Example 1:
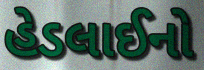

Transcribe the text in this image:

હેડલાઈનો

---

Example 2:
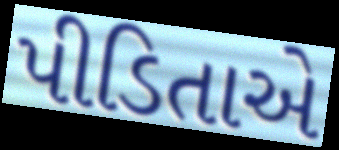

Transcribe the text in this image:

પીડિતાએ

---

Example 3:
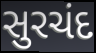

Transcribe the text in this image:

સુરચંદ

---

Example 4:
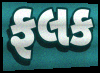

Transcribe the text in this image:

ફલક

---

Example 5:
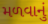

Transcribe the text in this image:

મળવાનું